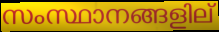
സംസ്ഥാനങ്ങളില്